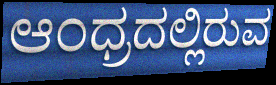
ಆಂಧ್ರದಲ್ಲಿರುವ